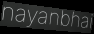
nayanbhai